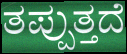
ತಪ್ಪುತ್ತದೆ